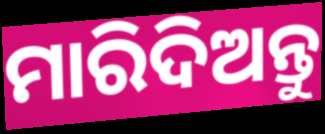
ମାରିଦିଅନ୍ତୁ